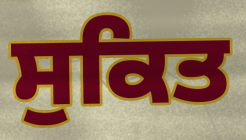
ਸੁਕਿਤ